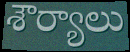
శౌర్యాలు